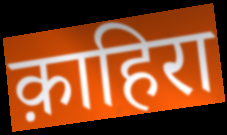
क़ाहिरा